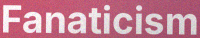
Fanaticism